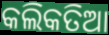
କଲିକତିଆ